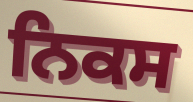
ਨਿਕਸ